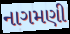
નાગમણી